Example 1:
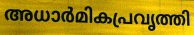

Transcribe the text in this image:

അധാർമികപ്രവൃത്തി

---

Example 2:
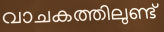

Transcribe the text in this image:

വാചകത്തിലുണ്ട്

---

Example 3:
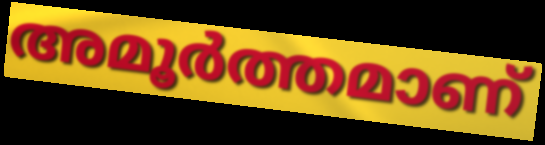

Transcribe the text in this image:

അമൂർത്തമാണ്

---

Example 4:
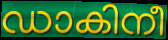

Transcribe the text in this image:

ഡാകിനീ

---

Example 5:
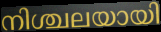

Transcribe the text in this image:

നിശ്ചലയായി